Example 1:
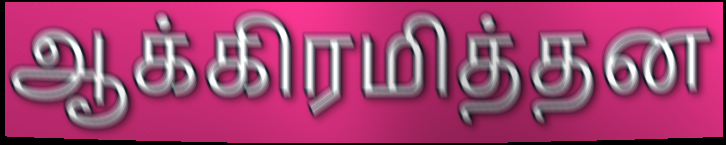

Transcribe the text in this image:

ஆக்கிரமித்தன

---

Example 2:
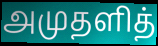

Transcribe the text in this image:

அமுதளித்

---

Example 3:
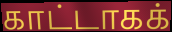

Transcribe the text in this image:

காட்டாகக்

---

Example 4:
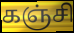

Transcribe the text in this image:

கஞ்சி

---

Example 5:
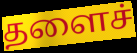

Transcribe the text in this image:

தளைச்